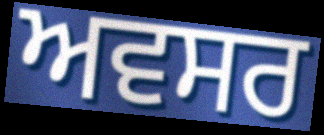
ਅਵਸਰ